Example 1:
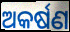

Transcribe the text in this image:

ଅକର୍ଷଣ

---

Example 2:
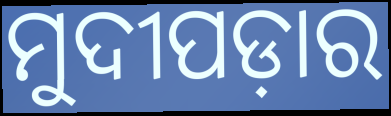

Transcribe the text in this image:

ମୁଦୀପଡ଼ାର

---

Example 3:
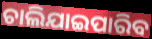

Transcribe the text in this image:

ଚାଲିଯାଇପାରିବ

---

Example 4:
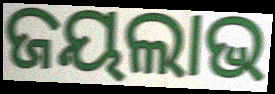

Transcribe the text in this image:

ଜୟଲାଭ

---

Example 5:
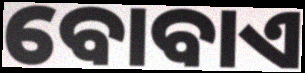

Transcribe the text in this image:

ବୋବାଏ